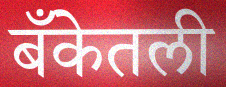
बँकेतली